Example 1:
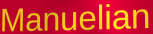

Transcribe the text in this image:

Manuelian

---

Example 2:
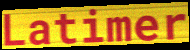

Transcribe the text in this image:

Latimer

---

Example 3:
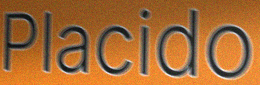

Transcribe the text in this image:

Placido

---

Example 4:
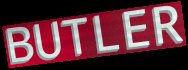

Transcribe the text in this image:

BUTLER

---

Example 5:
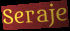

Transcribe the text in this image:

Seraje